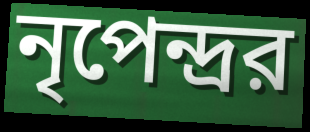
নৃপেন্দ্রর